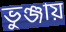
ভুঞ্জায়